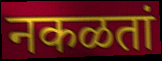
नकळतां